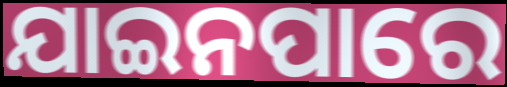
ଯାଇନପାରେ